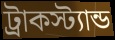
ট্রাকস্ট্যান্ড